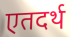
एतदर्थ